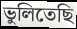
ভুলিতেছি